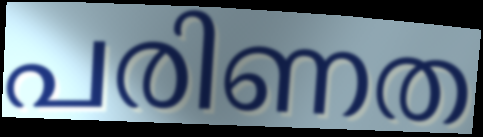
പരിണത